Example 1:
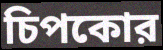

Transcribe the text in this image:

চিপকোর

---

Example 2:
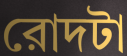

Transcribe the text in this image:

রোদটা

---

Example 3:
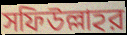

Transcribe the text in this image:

সফিউল্লাহর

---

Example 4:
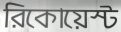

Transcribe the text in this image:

রিকোয়েস্ট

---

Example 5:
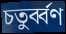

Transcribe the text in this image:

চতুর্ব্বণ